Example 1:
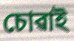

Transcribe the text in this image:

চোৱাই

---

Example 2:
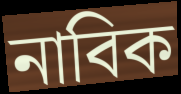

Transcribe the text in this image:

নাবিক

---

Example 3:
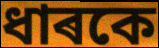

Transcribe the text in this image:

ধাৰকে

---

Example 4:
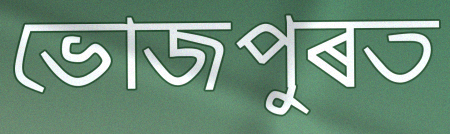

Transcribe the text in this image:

ভোজপুৰত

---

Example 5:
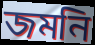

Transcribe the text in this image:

জমনি